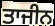
ਤਾਜੀਨ